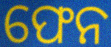
ଫେନ